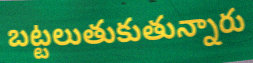
బట్టలుతుకుతున్నారు